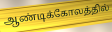
ஆண்டிக்கோலத்தில்